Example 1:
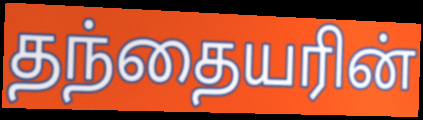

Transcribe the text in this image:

தந்தையரின்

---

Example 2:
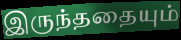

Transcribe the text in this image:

இருந்ததையும்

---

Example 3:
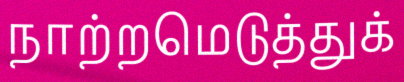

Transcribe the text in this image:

நாற்றமெடுத்துக்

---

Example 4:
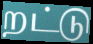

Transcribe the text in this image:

றட்டு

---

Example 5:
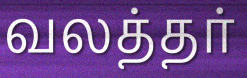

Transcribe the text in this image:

வலத்தர்